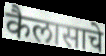
कैलासाचे